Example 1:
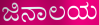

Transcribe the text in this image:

ಜಿನಾಲಯ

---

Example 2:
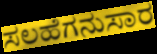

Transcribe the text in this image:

ಸಲಹೆಗನುಸಾರ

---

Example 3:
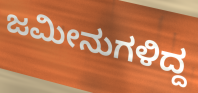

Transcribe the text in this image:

ಜಮೀನುಗಳಿದ್ದ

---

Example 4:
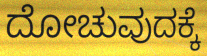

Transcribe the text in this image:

ದೋಚುವುದಕ್ಕೆ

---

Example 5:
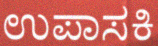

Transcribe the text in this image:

ಉಪಾಸಕಿ